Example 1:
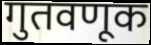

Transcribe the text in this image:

गुतवणूक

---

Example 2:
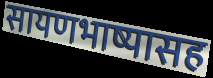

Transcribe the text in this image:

सायणभाष्यासह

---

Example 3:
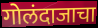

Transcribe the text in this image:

गोलंदाजाचा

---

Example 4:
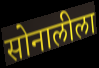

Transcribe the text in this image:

सोनालीला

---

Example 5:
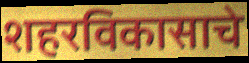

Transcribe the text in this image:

शहरविकासाचे